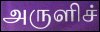
அருளிச்